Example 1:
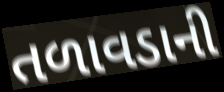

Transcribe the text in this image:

તળાવડાની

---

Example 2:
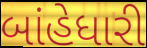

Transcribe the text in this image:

બાંહેધારી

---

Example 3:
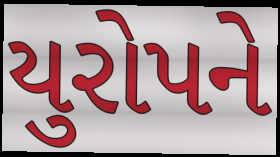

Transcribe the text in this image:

યુરોપને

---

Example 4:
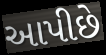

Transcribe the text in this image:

આપીછે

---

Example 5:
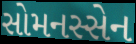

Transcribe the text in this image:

સોમનસ્સેન